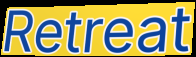
Retreat